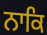
ਨਾਕਿ